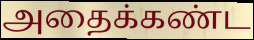
அதைக்கண்ட